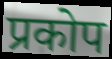
प्रकोप